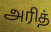
அரித்